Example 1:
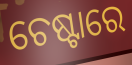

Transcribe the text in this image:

ଚେଷ୍ଟାରେ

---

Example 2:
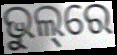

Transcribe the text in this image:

ଭୁଲ୍‌ରେ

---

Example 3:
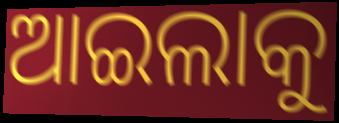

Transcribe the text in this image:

ଆଇଲାକୁ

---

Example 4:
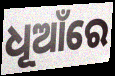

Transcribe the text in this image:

ଧୂଆଁରେ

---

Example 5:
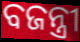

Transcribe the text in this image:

ବଜନ୍ତ୍ରୀ